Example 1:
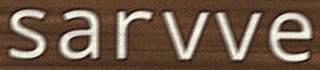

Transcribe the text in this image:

sarvve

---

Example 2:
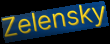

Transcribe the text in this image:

Zelensky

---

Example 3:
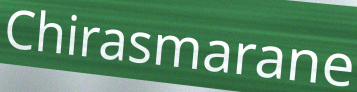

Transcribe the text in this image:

Chirasmarane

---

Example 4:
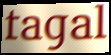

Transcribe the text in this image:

tagal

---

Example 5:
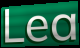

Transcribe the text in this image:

Lea